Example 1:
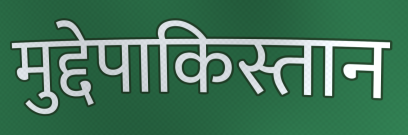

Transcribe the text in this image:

मुद्देपाकिस्तान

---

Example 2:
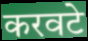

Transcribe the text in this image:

करवटे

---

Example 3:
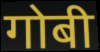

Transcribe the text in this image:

गोबी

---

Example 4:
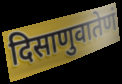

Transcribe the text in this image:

दिसाणुवातेणं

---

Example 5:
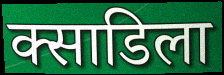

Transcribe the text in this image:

क्साडिला